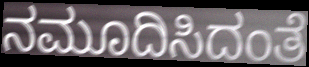
ನಮೂದಿಸಿದಂತೆ